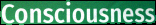
Consciousness